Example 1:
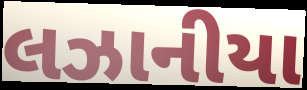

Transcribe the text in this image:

લઝાનીયા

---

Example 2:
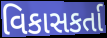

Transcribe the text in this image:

વિકાસકર્તા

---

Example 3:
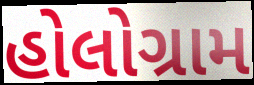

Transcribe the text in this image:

હોલોગ્રામ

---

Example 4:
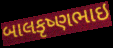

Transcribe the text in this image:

બાલકૃષ્ણભાઇ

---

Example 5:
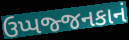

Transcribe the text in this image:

ઉપ્પજ્જનકાનં